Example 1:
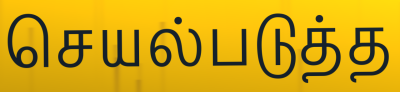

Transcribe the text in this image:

செயல்படுத்த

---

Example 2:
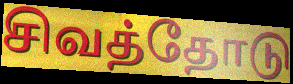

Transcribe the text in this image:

சிவத்தோடு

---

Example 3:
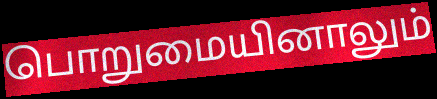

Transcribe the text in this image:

பொறுமையினாலும்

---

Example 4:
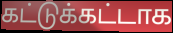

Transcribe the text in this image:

கட்டுக்கட்டாக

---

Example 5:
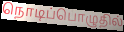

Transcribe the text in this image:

நொடிப்பொழுதில்